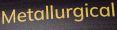
Metallurgical